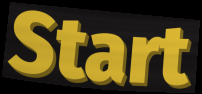
Start